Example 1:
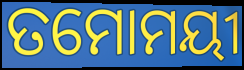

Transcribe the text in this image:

ତମୋମୟୀ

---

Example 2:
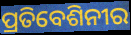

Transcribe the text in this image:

ପ୍ରତିବେଶିନୀର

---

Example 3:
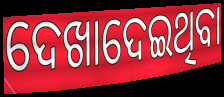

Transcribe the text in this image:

ଦେଖାଦେଇଥିବା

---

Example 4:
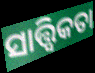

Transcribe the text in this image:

ସାତ୍ତ୍ବିକତା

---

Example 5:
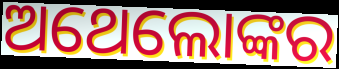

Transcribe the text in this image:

ଅଥେଲୋଙ୍କର